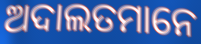
ଅଦାଲତମାନେ